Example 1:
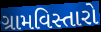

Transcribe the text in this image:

ગ્રામવિસ્તારો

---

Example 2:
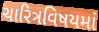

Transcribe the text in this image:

ચારિત્રવિષયમાં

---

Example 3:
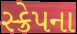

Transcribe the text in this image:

સ્ક્રેપના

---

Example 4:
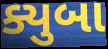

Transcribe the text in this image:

ક્યુબા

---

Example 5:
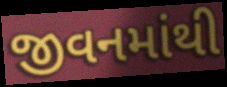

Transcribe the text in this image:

જીવનમાંથી